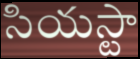
సియస్టా